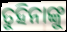
ତୁହିନାଙ୍କୁ